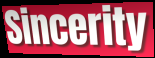
Sincerity